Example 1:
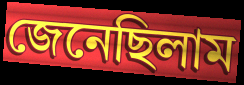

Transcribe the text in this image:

জেনেছিলাম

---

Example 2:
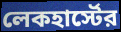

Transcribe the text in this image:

লেকহার্স্টের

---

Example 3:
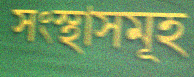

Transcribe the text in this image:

সংস্থাসমূহ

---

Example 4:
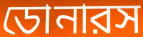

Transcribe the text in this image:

ডোনারস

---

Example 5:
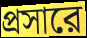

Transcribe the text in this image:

প্রসারে